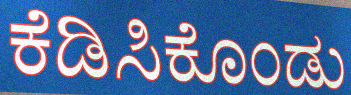
ಕೆಡಿಸಿಕೊಂಡು